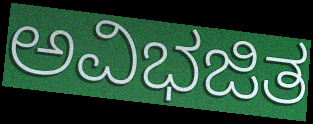
ಅವಿಭಜಿತ